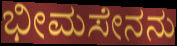
ಭೀಮಸೇನನು